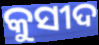
କୁସୀଦ